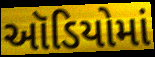
ઑડિયોમાં